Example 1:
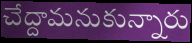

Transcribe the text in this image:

చేద్దామనుకున్నారు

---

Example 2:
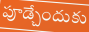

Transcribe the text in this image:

పూడ్చేందుకు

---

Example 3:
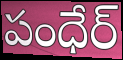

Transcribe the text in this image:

పంధేర్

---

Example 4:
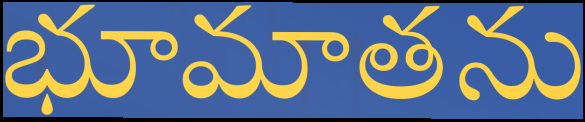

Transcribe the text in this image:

భూమాతను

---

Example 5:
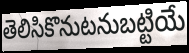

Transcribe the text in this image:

తెలిసికొనుటనుబట్టియే